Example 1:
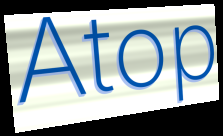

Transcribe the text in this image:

Atop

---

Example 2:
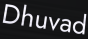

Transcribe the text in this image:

Dhuvad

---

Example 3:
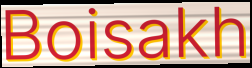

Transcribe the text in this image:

Boisakh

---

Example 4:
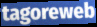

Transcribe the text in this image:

tagoreweb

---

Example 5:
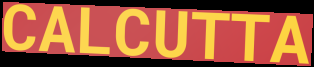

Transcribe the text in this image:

CALCUTTA